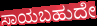
ಸಾಯಬಹುದೇ